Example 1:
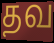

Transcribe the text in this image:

தவ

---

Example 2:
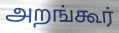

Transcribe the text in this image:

அறங்கூர்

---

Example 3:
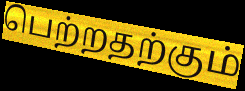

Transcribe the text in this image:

பெற்றதற்கும்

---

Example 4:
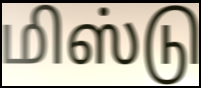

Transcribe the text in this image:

மிஸ்டு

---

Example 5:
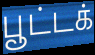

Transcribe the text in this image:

பூட்டக்